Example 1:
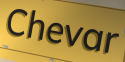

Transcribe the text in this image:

Chevar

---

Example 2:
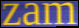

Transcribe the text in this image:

zam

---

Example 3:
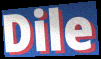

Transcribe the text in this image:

Dile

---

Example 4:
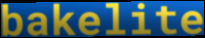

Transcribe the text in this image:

bakelite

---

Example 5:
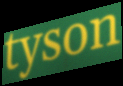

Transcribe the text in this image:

tyson